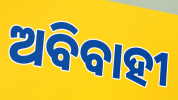
ଅବିବାହୀ